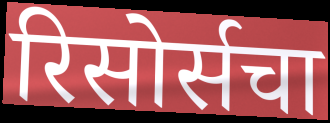
रिसोर्सचा